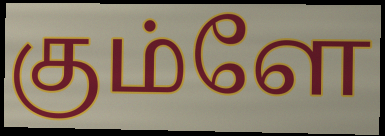
கும்ளே